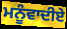
ਮਨੂੰਵਾਦੀਏ